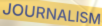
JOURNALISM